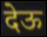
देऊ